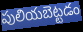
పులియబెట్టడం